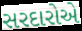
સરદારોએ